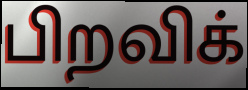
பிறவிக்